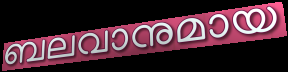
ബലവാനുമായ